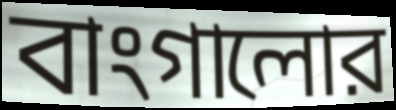
বাংগালোর